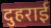
दुहराई